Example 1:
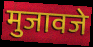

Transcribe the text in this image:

मुजावजे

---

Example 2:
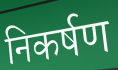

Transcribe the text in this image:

निकर्षण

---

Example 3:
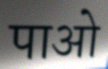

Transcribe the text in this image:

पाओ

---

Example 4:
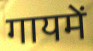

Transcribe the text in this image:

गायमें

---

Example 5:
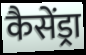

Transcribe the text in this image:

कैसेंड्रा